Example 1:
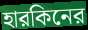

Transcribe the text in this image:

হারকিনের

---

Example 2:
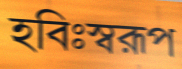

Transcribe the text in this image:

হবিঃস্বরূপ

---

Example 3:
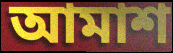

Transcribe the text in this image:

আমাশ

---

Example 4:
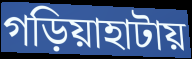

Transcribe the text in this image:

গড়িয়াহাটায়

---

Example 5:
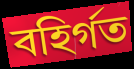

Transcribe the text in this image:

বহির্গত